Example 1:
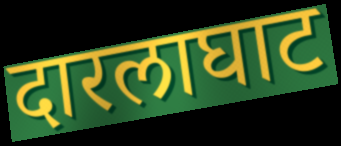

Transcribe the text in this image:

दारलाघाट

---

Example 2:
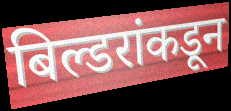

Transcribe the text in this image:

बिल्डरांकडून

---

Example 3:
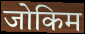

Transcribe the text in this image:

जोकिम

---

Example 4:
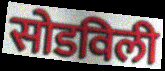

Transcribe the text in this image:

सोडविली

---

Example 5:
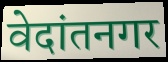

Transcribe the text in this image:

वेदांतनगर